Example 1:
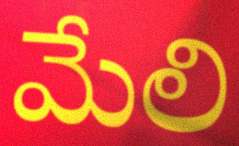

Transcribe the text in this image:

మేలి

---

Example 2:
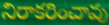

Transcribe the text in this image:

నిరాకరించావు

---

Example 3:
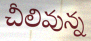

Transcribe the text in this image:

చీలివున్న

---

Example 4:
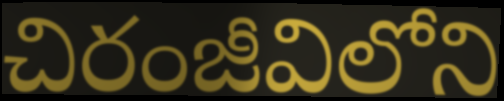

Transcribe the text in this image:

చిరంజీవిలోని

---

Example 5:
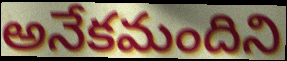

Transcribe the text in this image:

అనేకమందిని